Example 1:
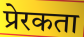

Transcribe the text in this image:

प्रेरकता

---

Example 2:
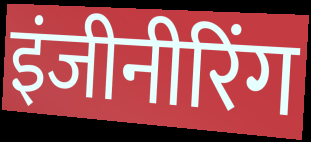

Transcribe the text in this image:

इंजीनीरिंग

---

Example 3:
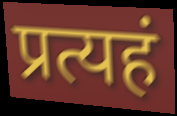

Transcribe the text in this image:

प्रत्यहं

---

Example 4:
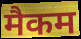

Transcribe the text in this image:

मैकम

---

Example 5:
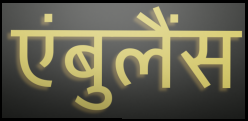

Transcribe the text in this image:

एंबुलैंस